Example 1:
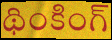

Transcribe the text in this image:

థింకింగ్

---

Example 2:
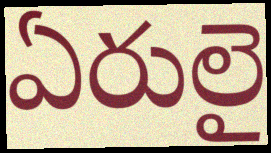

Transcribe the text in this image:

ఏరులై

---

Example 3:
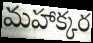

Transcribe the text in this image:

మహాక్కర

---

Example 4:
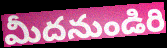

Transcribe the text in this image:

మీదనుండిరి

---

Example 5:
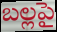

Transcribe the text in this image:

బల్లపై